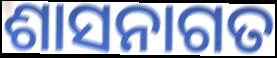
ଶାସନାଗତ